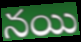
నయి